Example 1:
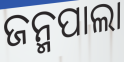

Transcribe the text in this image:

ଜନ୍ମପାଲା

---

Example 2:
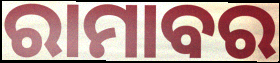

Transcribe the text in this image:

ରାମାବର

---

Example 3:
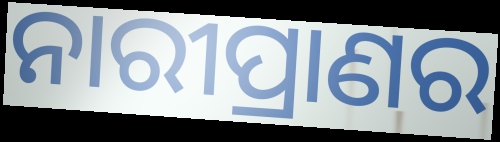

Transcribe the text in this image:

ନାରୀପ୍ରାଣର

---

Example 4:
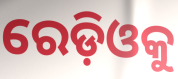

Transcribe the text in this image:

ରେଡ଼ିଓକୁ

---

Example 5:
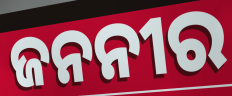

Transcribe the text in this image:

ଜନନୀର